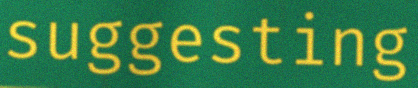
suggesting